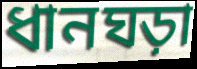
ধানঘড়া